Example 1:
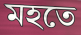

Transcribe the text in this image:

মহতে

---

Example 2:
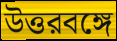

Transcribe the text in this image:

উত্তরবঙ্গে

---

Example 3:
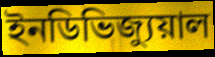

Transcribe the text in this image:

ইনডিভিজ্যুয়াল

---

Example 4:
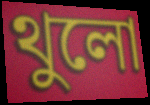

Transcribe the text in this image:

থুলো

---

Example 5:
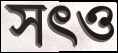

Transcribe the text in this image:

সৎও